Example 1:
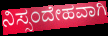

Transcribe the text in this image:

ನಿಸ್ಸಂದೇಹವಾಗಿ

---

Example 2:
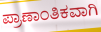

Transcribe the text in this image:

ಪ್ರಾಣಾಂತಿಕವಾಗಿ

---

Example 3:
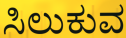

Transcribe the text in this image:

ಸಿಲುಕುವ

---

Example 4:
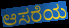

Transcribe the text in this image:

ಆಸರೆಯ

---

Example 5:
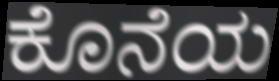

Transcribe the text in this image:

ಕೊನೆಯ